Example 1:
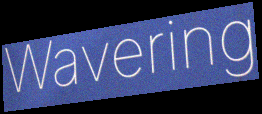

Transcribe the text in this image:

Wavering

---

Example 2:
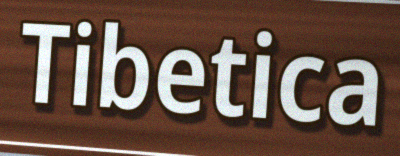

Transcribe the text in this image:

Tibetica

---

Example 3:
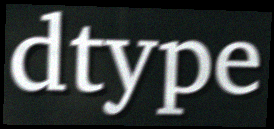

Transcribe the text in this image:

dtype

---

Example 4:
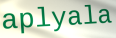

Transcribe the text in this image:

aplyala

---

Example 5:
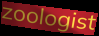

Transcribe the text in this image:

zoologist